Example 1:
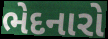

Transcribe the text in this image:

ભેદનારો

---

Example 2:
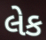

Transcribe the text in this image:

લેક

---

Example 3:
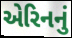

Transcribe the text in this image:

એરિનનું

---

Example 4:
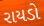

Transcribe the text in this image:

રાયડો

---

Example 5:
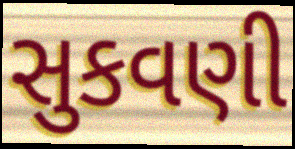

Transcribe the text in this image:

સુકવણી